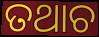
ତଥାଚ